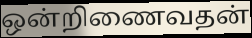
ஒன்றிணைவதன்